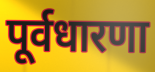
पूर्वधारणा